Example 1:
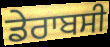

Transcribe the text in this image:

ਡੇਰਾਬਸੀ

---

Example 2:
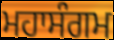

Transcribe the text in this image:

ਮਹਾਸੰਗਮ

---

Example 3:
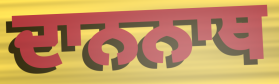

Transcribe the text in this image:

ਦਾਨਨਾਥ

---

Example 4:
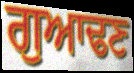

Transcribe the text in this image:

ਗੁਆਢਣ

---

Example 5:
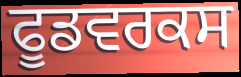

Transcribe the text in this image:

ਫੂਡਵਰਕਸ